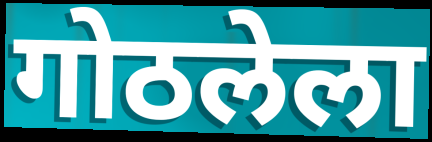
गोठलेला